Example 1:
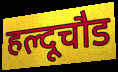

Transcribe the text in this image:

हल्दूचौड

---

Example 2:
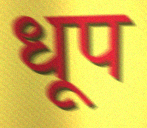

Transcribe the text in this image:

धूप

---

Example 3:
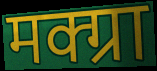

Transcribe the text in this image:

मक्ग्रा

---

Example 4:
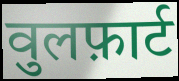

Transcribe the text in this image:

वुलफ़ार्ट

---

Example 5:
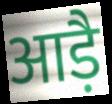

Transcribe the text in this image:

आड़ै